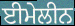
ਈਮੇਲੀਨ